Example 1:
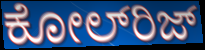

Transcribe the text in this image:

ಕೋಲ್‍ರಿಜ್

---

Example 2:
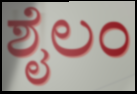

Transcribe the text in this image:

ಶೈಲಂ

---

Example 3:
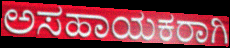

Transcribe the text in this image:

ಅಸಹಾಯಕರಾಗಿ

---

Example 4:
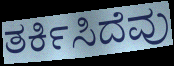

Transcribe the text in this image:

ತರ್ಕಿಸಿದೆವು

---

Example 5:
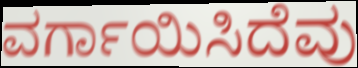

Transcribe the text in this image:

ವರ್ಗಾಯಿಸಿದೆವು